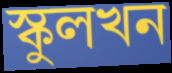
স্কুলখন